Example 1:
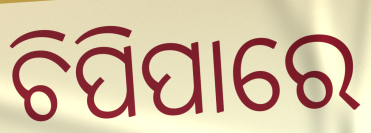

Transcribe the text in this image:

ଚିପିପାରେ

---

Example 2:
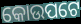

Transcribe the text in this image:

କୋଉପଟେ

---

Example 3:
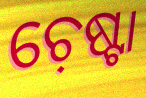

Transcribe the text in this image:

ଚ଼େଷ୍ଟା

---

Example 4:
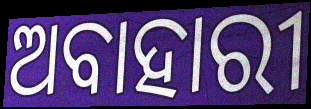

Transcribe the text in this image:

ଅବାହାରୀ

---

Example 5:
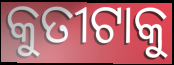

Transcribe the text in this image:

କୁତୀଟାକୁ